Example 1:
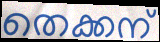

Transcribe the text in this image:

തെക്കന്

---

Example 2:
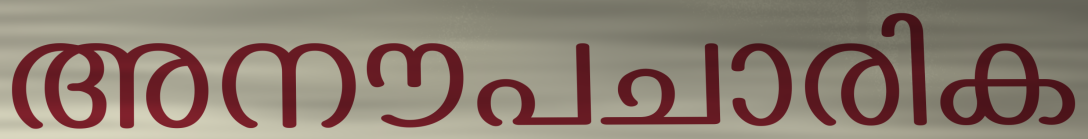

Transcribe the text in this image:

അനൗപചാരിക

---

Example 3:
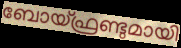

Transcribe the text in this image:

ബോയ്ഫ്രണ്ടുമായി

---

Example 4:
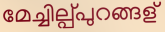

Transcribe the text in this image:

മേച്ചില്പ്പുറങ്ങള്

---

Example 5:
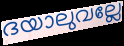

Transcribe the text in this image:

ദയാലുവല്ലേ